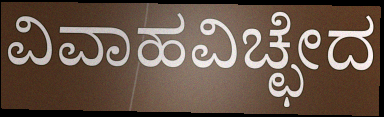
ವಿವಾಹವಿಚ್ಛೇದ